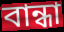
বান্ধা